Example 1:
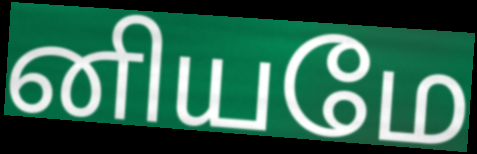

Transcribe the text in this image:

னியமே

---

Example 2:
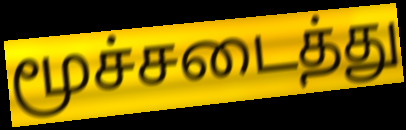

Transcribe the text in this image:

மூச்சடைத்து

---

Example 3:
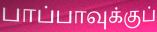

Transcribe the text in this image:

பாப்பாவுக்குப்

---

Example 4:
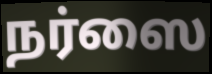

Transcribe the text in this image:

நர்ஸை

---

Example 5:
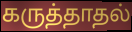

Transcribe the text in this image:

கருத்தாதல்